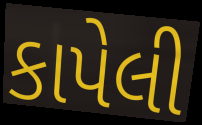
કાપેલી